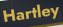
Hartley